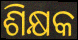
ଶିକ୍ଷକ